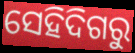
ସେହିଦିଗରୁ